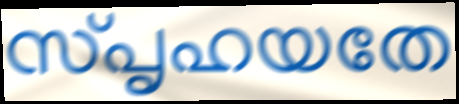
സ്പൃഹയതേ